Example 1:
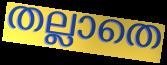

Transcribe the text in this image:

തല്ലാതെ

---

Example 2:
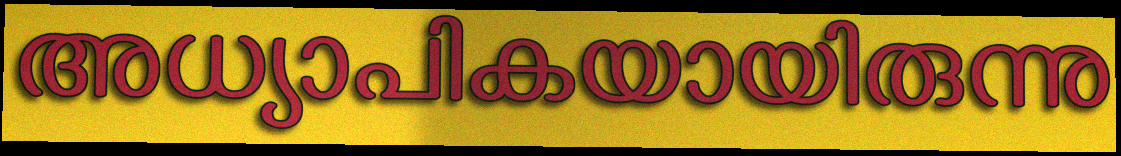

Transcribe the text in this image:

അധ്യാപികയായിരുന്നു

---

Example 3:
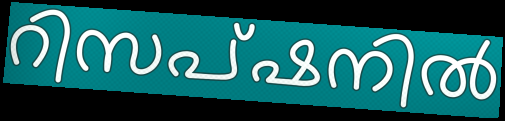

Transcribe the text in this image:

റിസപ്ഷനിൽ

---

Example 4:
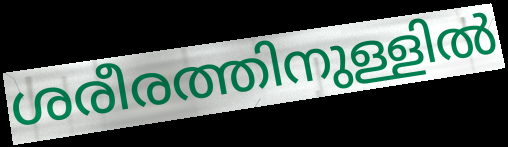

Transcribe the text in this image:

ശരീരത്തിനുള്ളിൽ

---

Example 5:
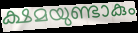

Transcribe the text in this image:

ക്ഷമയുണ്ടാകും